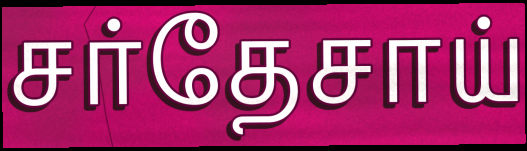
சர்தேசாய்